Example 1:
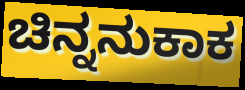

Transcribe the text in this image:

ಚಿನ್ನನುಕಾಕ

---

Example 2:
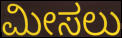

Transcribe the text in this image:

ಮೀಸಲು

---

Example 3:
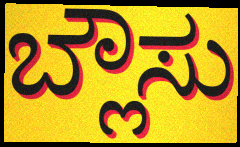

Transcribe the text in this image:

ಬ್ಲೌಸು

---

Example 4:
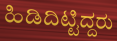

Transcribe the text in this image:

ಹಿಡಿದಿಟ್ಟಿದ್ದರು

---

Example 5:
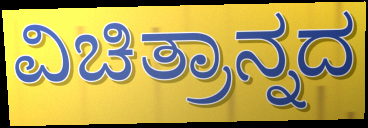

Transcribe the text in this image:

ವಿಚಿತ್ರಾನ್ನದ